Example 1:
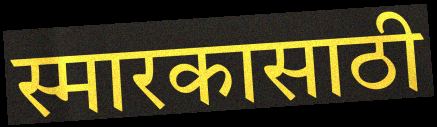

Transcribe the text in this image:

स्मारकासाठी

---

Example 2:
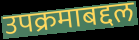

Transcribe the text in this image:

उपक्रमाबद्दल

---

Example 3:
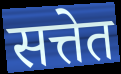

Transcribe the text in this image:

सत्तेत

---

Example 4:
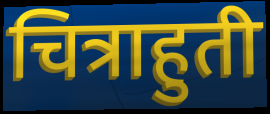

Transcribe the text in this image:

चित्राहुती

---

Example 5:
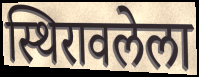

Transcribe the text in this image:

स्थिरावलेला